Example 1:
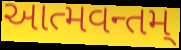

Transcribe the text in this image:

આત્મવન્તમ્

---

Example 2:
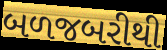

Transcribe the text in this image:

બળજબરીથી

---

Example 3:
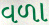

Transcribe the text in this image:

વળા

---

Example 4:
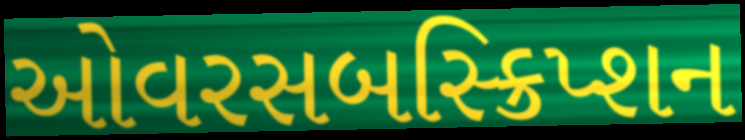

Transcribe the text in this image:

ઓવરસબસ્ક્રિપ્શન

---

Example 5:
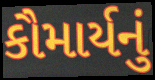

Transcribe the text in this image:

કૌમાર્યનું